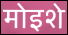
मोइशे